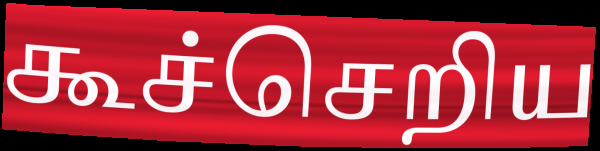
கூச்செறிய